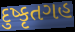
દુષ્કૃતગહ